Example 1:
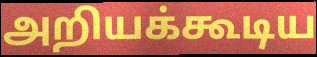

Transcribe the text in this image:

அறியக்கூடிய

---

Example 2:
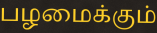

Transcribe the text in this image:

பழமைக்கும்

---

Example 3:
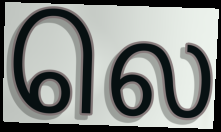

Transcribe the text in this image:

லெ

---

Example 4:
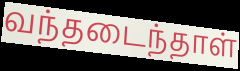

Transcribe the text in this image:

வந்தடைந்தாள்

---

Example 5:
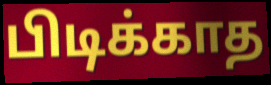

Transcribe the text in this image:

பிடிக்காத